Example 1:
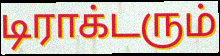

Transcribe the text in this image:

டிராக்டரும்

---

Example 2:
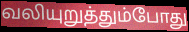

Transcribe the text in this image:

வலியுறுத்தும்போது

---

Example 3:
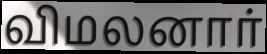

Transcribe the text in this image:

விமலனார்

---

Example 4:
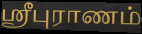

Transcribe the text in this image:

ஸ்ரீபுராணம்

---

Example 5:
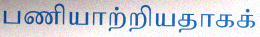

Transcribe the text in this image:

பணியாற்றியதாகக்